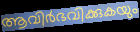
ആവിർഭവിക്കുകയും